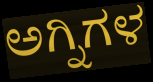
ಅಗ್ನಿಗಳ